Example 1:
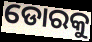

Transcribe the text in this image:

ଡୋରକୁ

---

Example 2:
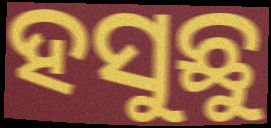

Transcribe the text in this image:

ହସୁଛୁ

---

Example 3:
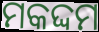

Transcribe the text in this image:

ମକଦ୍ଦମ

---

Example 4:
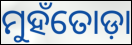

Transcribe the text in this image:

ମୁହଁତୋଡ଼ା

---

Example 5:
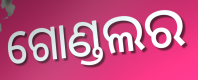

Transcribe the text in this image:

ଗୋଣ୍ଡଲର